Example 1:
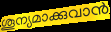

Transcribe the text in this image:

ശൂന്യമാക്കുവാൻ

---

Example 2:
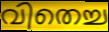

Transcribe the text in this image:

വിതെച്ച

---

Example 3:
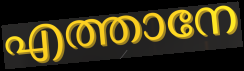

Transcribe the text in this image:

എത്താനേ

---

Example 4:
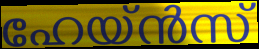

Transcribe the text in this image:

ഹേയ്ൻസ്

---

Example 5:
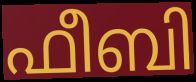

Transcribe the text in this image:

ഫീബി